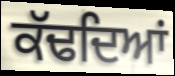
ਕੱਢਦਿਆਂ